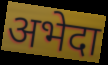
अभेदा